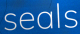
seals